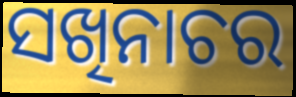
ସଖିନାଚର